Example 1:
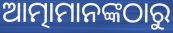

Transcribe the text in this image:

ଆତ୍ମାମାନଙ୍କଠାରୁ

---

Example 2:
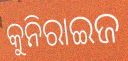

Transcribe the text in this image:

କୁନିରାଇଜ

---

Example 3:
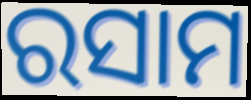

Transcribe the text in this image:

ରସାମ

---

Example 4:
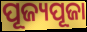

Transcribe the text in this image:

ପୂଜ୍ୟପୂଜା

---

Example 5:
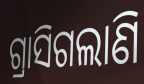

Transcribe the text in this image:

ଗ୍ରାସିଗଲାଣି